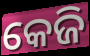
କେଜି